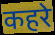
कहरे